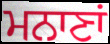
ਮਨਾਣਾਂ